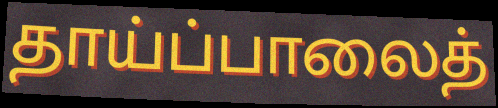
தாய்ப்பாலைத்